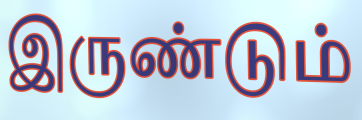
இருண்டும்